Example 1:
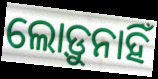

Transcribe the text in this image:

ଲୋଡ଼ୁନାହିଁ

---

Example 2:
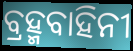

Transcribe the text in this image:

ବ୍ରହ୍ମବାହିନୀ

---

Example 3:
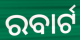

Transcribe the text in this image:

ରବାର୍ଟ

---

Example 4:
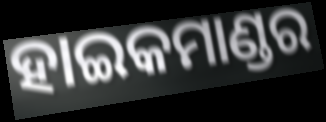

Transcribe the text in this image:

ହାଇକମାଣ୍ଡର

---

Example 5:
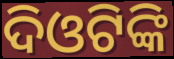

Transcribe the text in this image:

ଦିଓଟିଙ୍କି